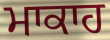
ਮਾਕਾਹ